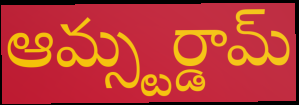
ఆమ్స్టర్డామ్